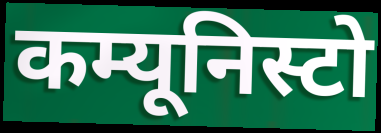
कम्यूनिस्टो